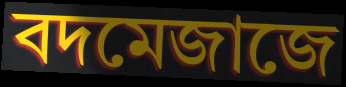
বদমেজাজে